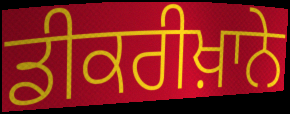
ਡੀਕਰੀਖ਼ਾਨੇ